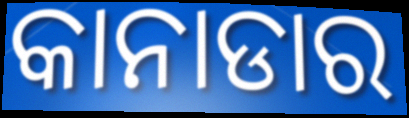
କାନାଡାର